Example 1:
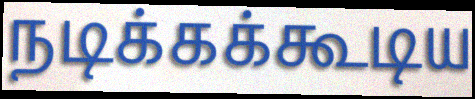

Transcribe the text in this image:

நடிக்கக்கூடிய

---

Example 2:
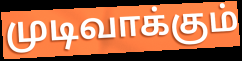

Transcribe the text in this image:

முடிவாக்கும்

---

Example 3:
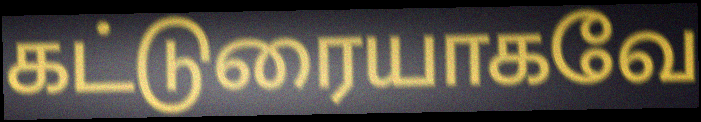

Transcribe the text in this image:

கட்டுரையாகவே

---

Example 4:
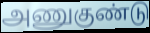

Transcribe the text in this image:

அணுகுண்டு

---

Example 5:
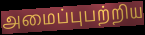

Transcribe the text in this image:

அமைப்புபற்றிய